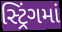
સ્ટ્રિંગમાં